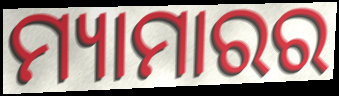
ମ୍ୟାମାରର